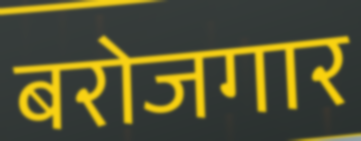
बरोजगार